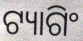
ଟ୍ୟାଗିଂ